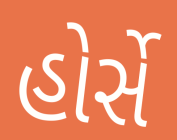
હોર્સે